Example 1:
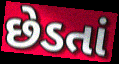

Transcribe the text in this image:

છેડતાં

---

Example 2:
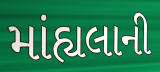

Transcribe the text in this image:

માંહ્યલાની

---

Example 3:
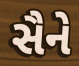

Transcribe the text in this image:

સૈને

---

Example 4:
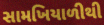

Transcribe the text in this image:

સામખિયાળીથી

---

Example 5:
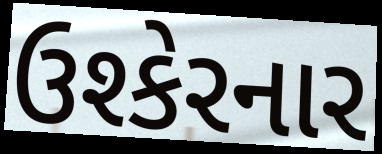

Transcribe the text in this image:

ઉશ્કેરનાર